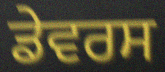
ਡੇਵਰਸ